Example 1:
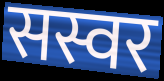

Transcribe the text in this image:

सस्वर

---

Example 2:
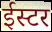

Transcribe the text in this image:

ईस्टर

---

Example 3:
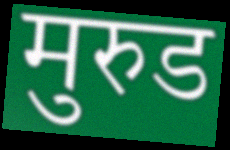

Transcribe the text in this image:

मुरुड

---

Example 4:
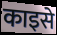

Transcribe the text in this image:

काइसे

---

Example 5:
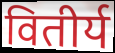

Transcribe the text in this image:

वितीर्य